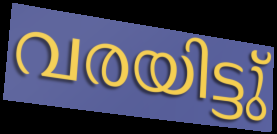
വരയിട്ടു്